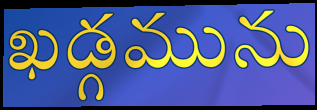
ఖడ్గమును